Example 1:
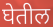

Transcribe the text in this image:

घेतील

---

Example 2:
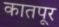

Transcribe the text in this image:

कातपूर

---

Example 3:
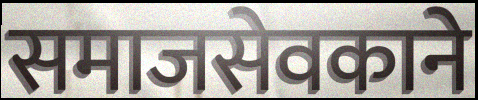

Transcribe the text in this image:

समाजसेवकाने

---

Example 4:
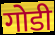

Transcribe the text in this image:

गोडी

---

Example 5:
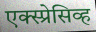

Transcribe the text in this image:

एक्स्प्रेसिव्ह